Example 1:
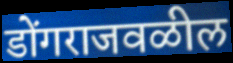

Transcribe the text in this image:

डोंगराजवळील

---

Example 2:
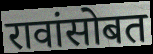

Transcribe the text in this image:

रावांसोबत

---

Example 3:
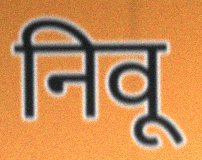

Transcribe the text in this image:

निवू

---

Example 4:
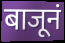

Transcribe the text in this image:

बाजूनं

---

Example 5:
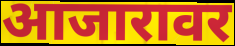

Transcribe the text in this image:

आजारावर